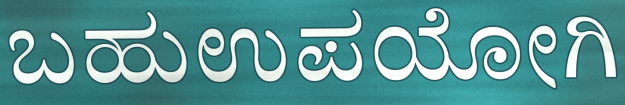
ಬಹುಉಪಯೋಗಿ